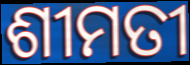
ଶୀମତୀ